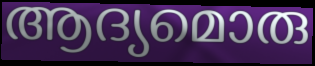
ആദ്യമൊരു